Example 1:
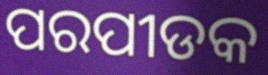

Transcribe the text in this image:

ପରପୀଡକ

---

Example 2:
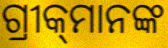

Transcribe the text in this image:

ଗ୍ରୀକ୍‌ମାନଙ୍କ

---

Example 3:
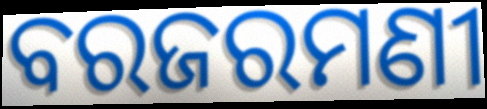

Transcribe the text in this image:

ବରଜରମଣୀ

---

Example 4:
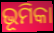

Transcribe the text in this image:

ଭୂମିକା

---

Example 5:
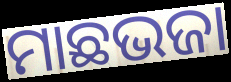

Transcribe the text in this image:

ମାଛଭଜା